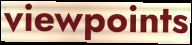
viewpoints